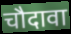
चौदावा